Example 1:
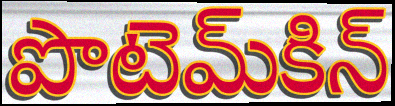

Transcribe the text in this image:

పొటెమ్‌కిన్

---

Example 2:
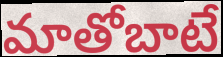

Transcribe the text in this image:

మాతోబాటే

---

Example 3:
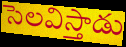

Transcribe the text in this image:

సెలవిస్తాడు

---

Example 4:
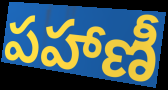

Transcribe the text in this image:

పహాణీ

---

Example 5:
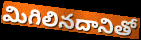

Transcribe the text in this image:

మిగిలినదానితో